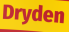
Dryden